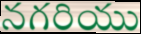
నగరియు